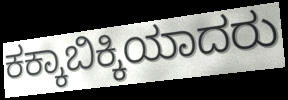
ಕಕ್ಕಾಬಿಕ್ಕಿಯಾದರು